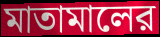
মাতামালের